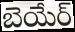
బెయేర్